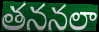
తననలా